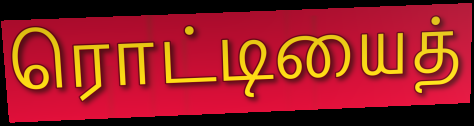
ரொட்டியைத்